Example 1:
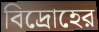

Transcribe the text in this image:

বিদ্রোহের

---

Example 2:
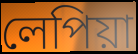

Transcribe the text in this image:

লেপিয়া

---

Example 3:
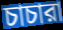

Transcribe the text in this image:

চাচারা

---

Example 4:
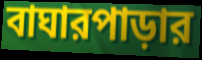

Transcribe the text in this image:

বাঘারপাড়ার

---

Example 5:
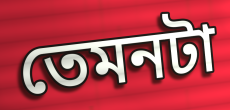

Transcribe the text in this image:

তেমনটা